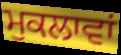
ਮੁਕਲਾਵਾਂ